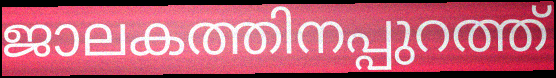
ജാലകത്തിനപ്പുറത്ത്